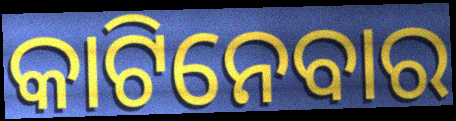
କାଟିନେବାର